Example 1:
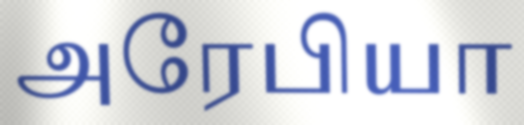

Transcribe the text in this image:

அரேபியா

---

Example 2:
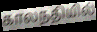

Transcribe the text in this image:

காலநதியில்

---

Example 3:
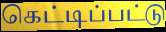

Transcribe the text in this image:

கெட்டிப்பட்டு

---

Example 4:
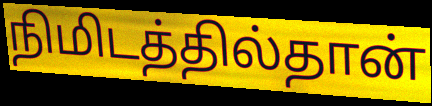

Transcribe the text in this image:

நிமிடத்தில்தான்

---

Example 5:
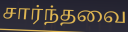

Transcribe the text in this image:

சார்ந்தவை